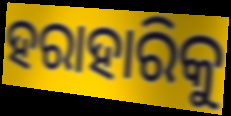
ହରାହାରିକୁ